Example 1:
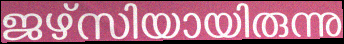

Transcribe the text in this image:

ജഴ്സിയായിരുന്നു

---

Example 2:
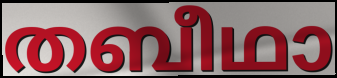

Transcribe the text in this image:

തബീഥാ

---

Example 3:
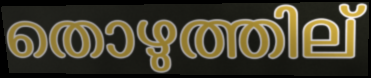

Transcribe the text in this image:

തൊഴുത്തില്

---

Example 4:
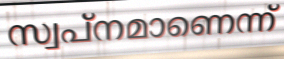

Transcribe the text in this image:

സ്വപ്നമാണെന്ന്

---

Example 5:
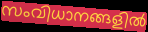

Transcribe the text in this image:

സംവിധാനങ്ങളിൽ